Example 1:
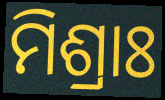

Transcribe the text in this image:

ମିଶ୍ରାଃ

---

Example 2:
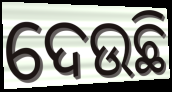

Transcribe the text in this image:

ଦେଉଛି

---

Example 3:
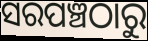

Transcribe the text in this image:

ସରପଞ୍ଚଠାରୁ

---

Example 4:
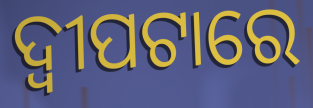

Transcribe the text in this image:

ଦ୍ୱୀପଟାରେ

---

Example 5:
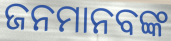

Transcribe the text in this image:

ଜନମାନବଙ୍କ